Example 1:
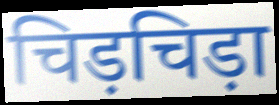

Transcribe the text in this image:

चिड़चिड़ा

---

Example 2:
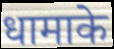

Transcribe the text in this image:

धामाके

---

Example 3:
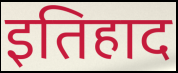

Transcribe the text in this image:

इतिहाद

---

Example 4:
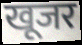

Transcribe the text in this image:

खूजर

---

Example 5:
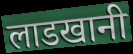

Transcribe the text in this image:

लाडखानी